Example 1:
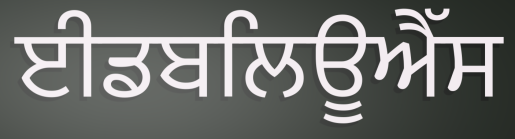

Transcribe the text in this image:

ਈਡਬਲਿਊਐੱਸ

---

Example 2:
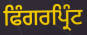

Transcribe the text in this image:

ਫਿੰਗਰਪ੍ਰਿੰਟ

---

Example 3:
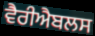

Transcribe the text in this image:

ਵੈਰੀਐਬਲਸ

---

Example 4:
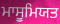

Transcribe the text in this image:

ਮਾਸੂਮਿਯਤ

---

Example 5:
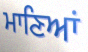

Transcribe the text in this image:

ਮਾਣਿਆਂ